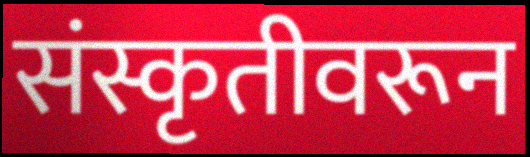
संस्कृतीवरून